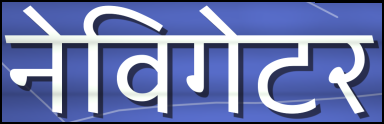
नेविगेटर